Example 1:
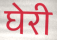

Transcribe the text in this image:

घेरी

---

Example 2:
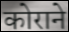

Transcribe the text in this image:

कोराने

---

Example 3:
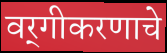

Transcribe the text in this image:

वर्गीकरणाचे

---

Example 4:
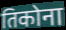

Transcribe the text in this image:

तिकोना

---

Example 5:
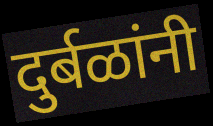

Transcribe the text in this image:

दुर्बळांनी